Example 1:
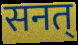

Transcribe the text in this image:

सनत्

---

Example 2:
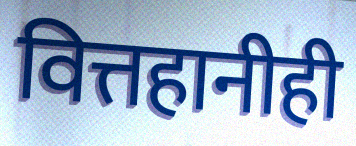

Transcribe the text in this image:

वित्तहानीही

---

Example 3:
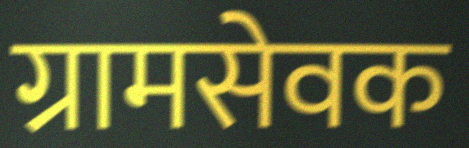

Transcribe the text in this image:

ग्रामसेवक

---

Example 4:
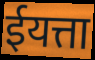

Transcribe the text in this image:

ईयत्ता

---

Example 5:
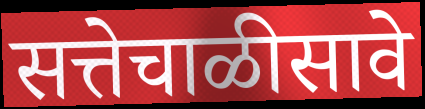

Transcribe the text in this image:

सत्तेचाळीसावे